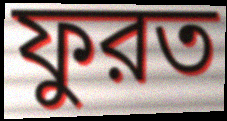
ফুরত